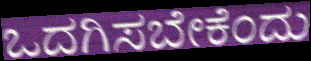
ಒದಗಿಸಬೇಕೆಂದು